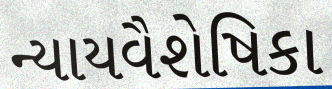
ન્યાયવૈશેષિકા